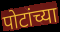
पोटांच्या